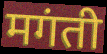
मगंती